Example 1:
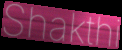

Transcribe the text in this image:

Shakthi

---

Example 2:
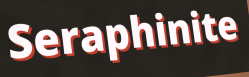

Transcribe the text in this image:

Seraphinite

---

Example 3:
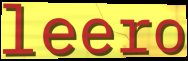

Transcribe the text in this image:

leero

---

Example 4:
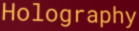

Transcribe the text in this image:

Holography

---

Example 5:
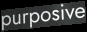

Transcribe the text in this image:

purposive